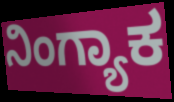
ನಿಂಗ್ಯಾಕ